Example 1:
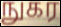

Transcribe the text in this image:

நுகர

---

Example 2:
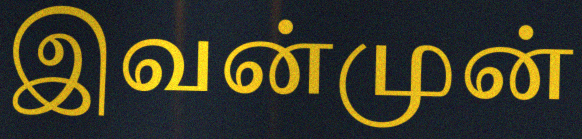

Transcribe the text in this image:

இவன்முன்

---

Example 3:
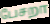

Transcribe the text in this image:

பேசறா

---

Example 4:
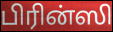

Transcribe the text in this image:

பிரின்ஸி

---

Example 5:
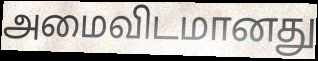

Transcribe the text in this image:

அமைவிடமானது